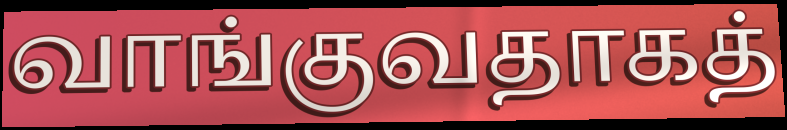
வாங்குவதாகத்